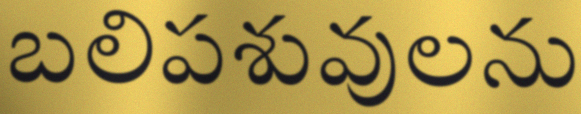
బలిపశువులను